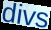
divs